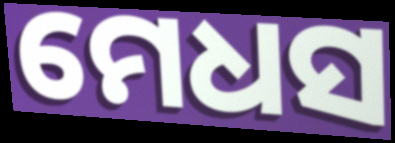
ମେଧସ